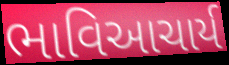
ભાવિઆચાર્ય